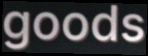
goods